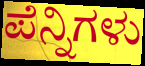
ಪೆನ್ನಿಗಳು